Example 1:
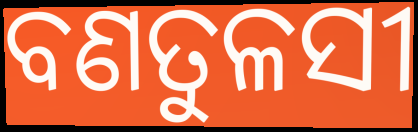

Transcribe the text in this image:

ବଣତୁଳସୀ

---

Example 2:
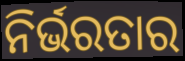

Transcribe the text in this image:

ନିର୍ଭରତାର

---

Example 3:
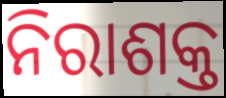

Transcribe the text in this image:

ନିରାଶକ୍ତ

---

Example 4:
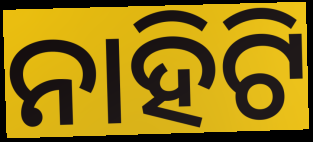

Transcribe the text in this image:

ନାହିଟି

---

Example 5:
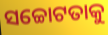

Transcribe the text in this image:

ସଚ୍ଚୋଟତାକୁ